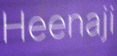
Heenaji